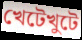
খেটেখুটে